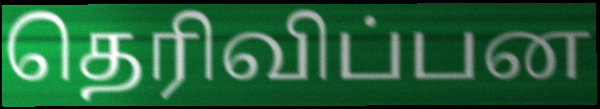
தெரிவிப்பன